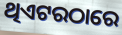
ଥିଏଟରଠାରେ